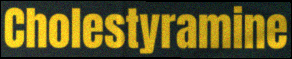
Cholestyramine